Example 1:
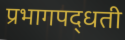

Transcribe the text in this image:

प्रभागपद्धती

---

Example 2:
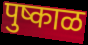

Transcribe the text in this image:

पुष्काळ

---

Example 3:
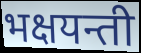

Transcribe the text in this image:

भक्षयन्ती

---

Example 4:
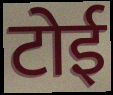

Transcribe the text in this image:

टोई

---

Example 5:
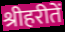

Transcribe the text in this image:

श्रीहरीतें